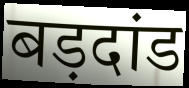
बड़दांड